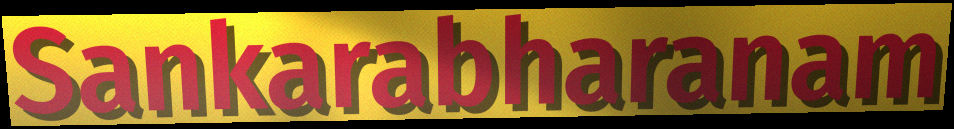
Sankarabharanam